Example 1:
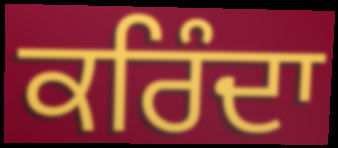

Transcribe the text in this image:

ਕਰਿੰਦਾ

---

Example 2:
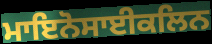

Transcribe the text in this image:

ਮਾਇਨੋਸਾਈਕਲਿਨ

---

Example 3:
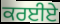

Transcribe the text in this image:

ਕਰਈਏ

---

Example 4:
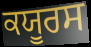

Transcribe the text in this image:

ਕਯੂਰਸ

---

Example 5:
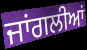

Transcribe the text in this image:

ਜਾਂਗਲੀਆਂ